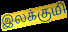
இலக்குமி